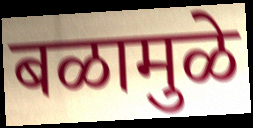
बळामुळे